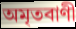
অমৃতবাণী